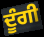
ਦੂੰਗੀ